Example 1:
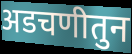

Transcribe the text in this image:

अडचणीतुन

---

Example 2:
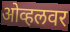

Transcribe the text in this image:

ओव्हलवर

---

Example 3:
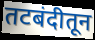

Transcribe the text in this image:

तटबंदीतून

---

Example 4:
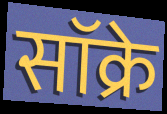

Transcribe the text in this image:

सॉक्रे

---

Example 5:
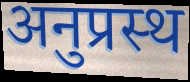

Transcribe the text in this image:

अनुप्रस्थ